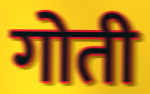
गोती